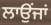
ਲਾਉਂਜਾਂ